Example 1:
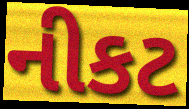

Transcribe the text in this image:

નીકટ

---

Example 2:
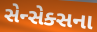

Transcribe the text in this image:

સેન્સેક્સના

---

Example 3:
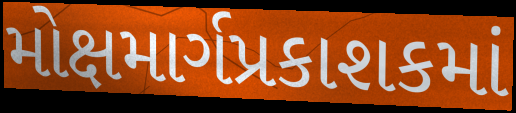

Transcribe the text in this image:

મોક્ષમાર્ગપ્રકાશકમાં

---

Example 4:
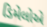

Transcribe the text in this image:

ડિમેલોએ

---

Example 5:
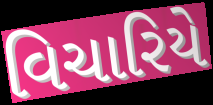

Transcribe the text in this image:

વિચારિયે